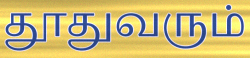
தூதுவரும்